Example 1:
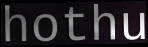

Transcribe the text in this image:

hothu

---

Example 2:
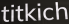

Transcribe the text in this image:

titkich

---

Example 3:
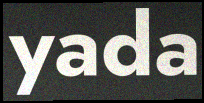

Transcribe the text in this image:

yada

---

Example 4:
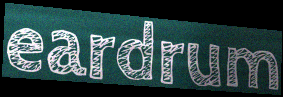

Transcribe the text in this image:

eardrum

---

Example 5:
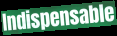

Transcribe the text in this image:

Indispensable